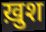
ख़ुश